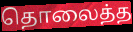
தொலைத்த